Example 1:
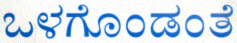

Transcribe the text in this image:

ಒಳಗೊಂಡಂತೆ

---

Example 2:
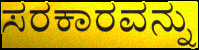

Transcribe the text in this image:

ಸರಕಾರವನ್ನು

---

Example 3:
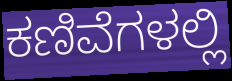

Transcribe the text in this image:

ಕಣಿವೆಗಳಲ್ಲಿ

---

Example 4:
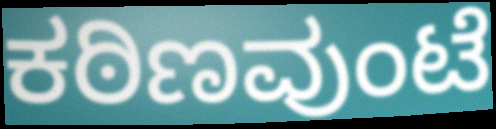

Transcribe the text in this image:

ಕಠಿಣವುಂಟೆ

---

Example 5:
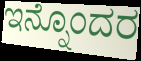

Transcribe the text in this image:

ಇನ್ನೊಂದರ